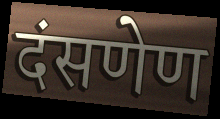
दंसणेण